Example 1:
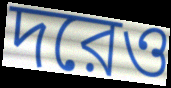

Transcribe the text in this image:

দরেও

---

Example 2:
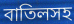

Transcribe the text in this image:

বাতিলসহ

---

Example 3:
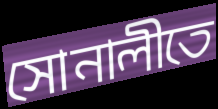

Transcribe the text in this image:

সোনালীতে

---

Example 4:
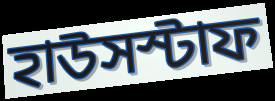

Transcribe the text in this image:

হাউসস্টাফ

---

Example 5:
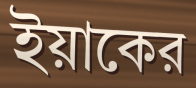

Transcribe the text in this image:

ইয়াকের